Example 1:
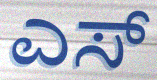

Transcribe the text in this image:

ಎಸ್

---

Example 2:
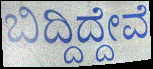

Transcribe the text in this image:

ಬಿದ್ದಿದ್ದೇವೆ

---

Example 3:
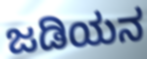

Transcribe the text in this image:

ಜಡಿಯನ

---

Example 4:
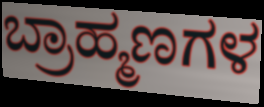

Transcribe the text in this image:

ಬ್ರಾಹ್ಮಣಗಳ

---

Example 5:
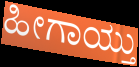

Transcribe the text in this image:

ಹೀಗಾಯ್ತು